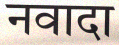
नवादा